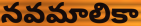
నవమాలికా